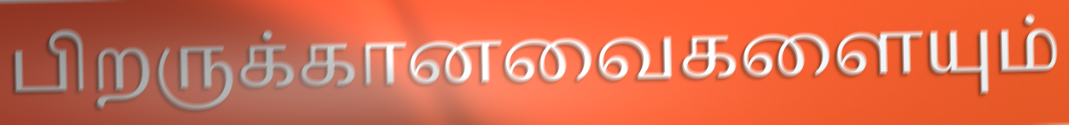
பிறருக்கானவைகளையும்